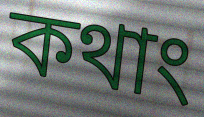
কথাং